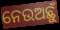
ନେଉଅଛୁଁ